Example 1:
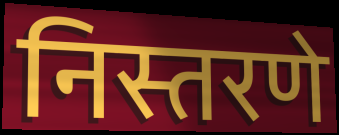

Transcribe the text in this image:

निस्तरणे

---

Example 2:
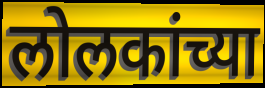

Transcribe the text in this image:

लोलकांच्या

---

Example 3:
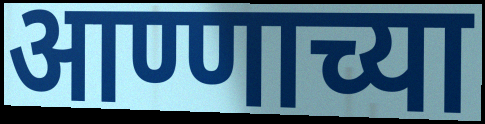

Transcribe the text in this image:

आण्णाच्या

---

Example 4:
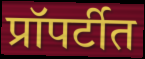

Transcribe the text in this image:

प्रॉपर्टीत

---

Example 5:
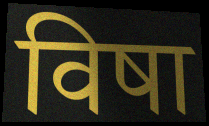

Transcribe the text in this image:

विषा